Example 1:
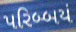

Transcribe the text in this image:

પરિબ્બયં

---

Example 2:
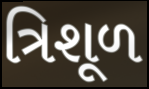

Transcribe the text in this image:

ત્રિશૂળ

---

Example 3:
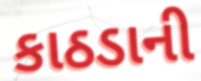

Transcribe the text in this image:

કાઠડાની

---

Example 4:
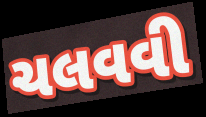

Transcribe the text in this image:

ચલવવી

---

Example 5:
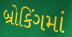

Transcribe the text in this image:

બ્રોકિંગમાં